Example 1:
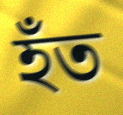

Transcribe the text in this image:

হঁত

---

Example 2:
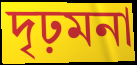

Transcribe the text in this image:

দৃঢ়মনা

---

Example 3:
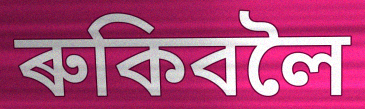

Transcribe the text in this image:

ৰুকিবলৈ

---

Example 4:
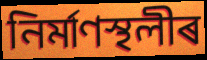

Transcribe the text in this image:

নিৰ্মাণস্থলীৰ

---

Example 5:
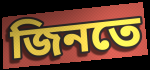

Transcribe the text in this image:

জিনতে